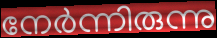
നേർന്നിരുന്നു